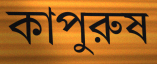
কাপুরুষ